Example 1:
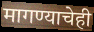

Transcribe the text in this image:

मागण्याचेही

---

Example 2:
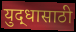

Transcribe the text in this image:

युद्धासाठी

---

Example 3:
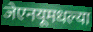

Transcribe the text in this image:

जेएनयूमधल्या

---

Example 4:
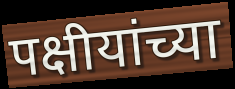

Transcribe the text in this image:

पक्षीयांच्या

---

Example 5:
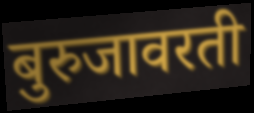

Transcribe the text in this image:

बुरुजावरती